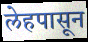
लेहपासून